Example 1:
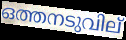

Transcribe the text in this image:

ഒത്തനടുവില്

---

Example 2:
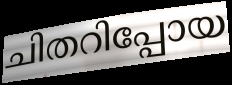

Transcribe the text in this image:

ചിതറിപ്പോയ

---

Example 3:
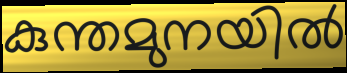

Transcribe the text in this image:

കുന്തമുനയിൽ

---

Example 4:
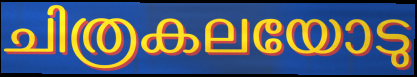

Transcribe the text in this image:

ചിത്രകലയോടു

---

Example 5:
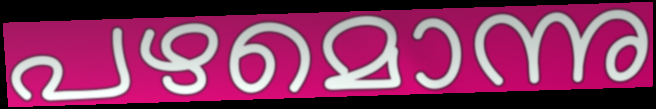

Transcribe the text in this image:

പഴമൊന്നു